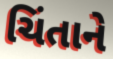
ચિંતાને